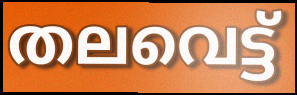
തലവെട്ട്